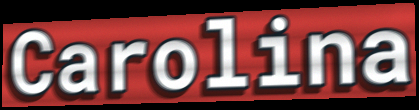
Carolina